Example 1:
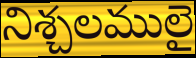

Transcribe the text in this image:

నిశ్చలములై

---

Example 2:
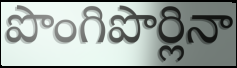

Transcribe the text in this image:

పొంగిపొర్లినా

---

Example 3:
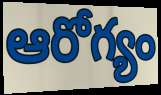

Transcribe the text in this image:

ఆరోగ్యం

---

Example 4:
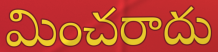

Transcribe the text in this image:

మించరాదు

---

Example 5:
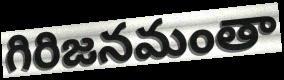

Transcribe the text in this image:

గిరిజనమంతా